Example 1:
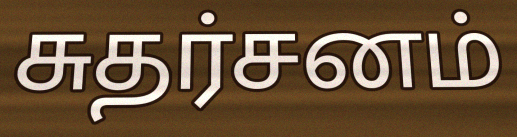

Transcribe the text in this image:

சுதர்சனம்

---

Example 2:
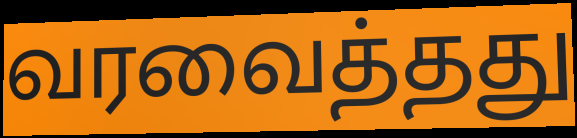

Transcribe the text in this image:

வரவைத்தது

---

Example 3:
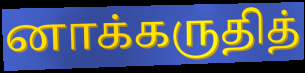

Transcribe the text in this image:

னாக்கருதித்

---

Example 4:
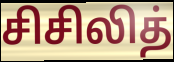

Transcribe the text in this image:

சிசிலித்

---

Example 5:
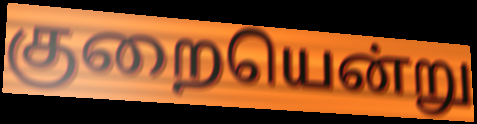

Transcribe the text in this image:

குறையென்று